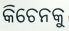
କିଚେନକୁ